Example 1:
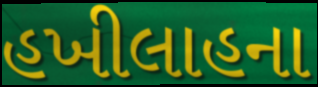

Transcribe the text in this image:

હખીલાહના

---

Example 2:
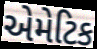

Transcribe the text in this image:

એમેટિક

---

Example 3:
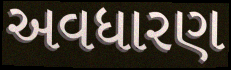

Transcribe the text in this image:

અવધારણ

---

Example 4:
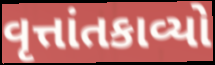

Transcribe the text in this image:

વૃત્તાંતકાવ્યો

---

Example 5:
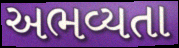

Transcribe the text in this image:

અભવ્યતા